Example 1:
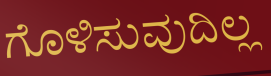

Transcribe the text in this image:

ಗೊಳಿಸುವುದಿಲ್ಲ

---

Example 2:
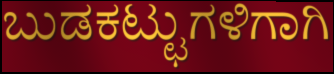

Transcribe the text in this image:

ಬುಡಕಟ್ಟುಗಳಿಗಾಗಿ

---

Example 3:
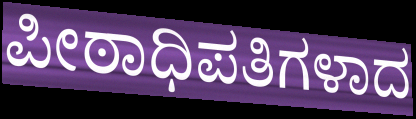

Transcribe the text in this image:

ಪೀಠಾಧಿಪತಿಗಳಾದ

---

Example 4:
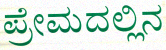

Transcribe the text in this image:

ಪ್ರೇಮದಲ್ಲಿನ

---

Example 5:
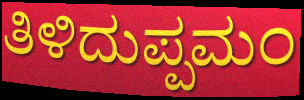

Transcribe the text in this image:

ತಿಳಿದುಪ್ಪಮಂ